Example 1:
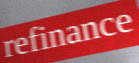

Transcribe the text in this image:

refinance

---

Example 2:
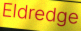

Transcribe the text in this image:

Eldredge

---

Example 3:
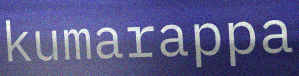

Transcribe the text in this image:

kumarappa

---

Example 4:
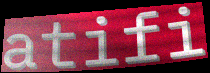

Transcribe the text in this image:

atifi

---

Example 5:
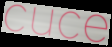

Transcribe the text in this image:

cuce